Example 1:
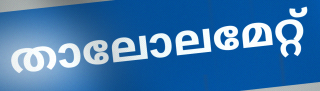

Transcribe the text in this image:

താലോലമേറ്റ്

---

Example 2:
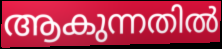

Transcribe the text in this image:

ആകുന്നതിൽ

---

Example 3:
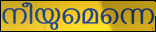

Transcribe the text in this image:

നീയുമെന്നെ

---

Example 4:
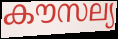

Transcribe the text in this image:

കൗസല്യ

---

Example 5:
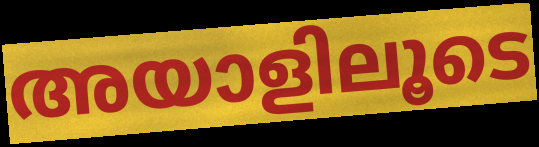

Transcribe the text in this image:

അയാളിലൂടെ